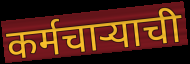
कर्मचार्‍याची